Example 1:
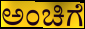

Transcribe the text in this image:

ಅಂಚಿಗೆ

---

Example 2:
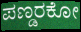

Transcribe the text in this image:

ಪಣ್ಡರಕೋ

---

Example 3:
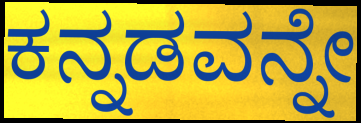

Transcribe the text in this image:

ಕನ್ನಡವನ್ನೇ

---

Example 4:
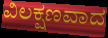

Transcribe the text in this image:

ವಿಲಕ್ಷಣವಾದ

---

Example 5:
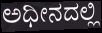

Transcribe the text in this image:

ಅಧೀನದಲ್ಲಿ